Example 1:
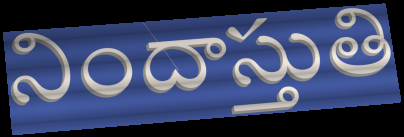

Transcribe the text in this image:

నిందాస్తుతి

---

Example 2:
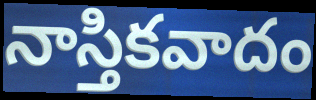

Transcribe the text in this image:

నాస్తికవాదం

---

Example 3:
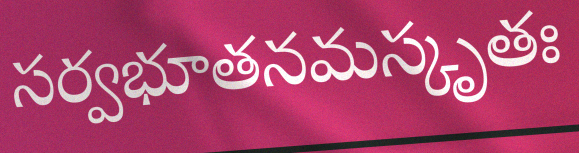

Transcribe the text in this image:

సర్వభూతనమస్కృతః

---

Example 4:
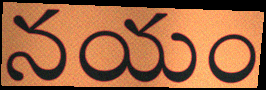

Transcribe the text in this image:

నయం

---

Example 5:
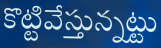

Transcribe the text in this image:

కొట్టివేస్తున్నట్టు